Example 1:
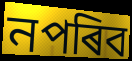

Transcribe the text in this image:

নপৰিব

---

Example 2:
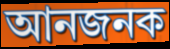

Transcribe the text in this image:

আনজনক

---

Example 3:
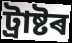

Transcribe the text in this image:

ট্ৰাষ্টৰ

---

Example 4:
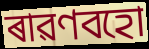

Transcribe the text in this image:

ৰাৱণবহো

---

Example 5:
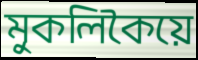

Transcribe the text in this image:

মুকলিকৈয়ে